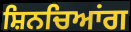
ਸ਼ਿਨਚਿਆਂਗ